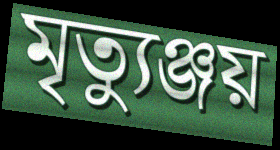
মৃত্যুঞ্জয়